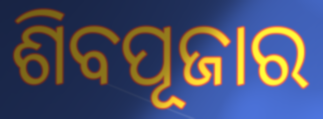
ଶିବପୂଜାର